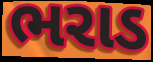
ભરાડ